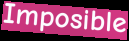
Imposible